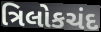
ત્રિલોકચંદ